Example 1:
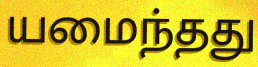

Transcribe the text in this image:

யமைந்தது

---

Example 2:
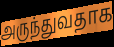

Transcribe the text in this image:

அருந்துவதாக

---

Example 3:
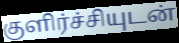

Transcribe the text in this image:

குளிர்ச்சியுடன்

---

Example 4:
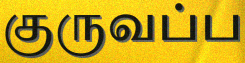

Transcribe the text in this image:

குருவப்ப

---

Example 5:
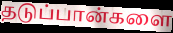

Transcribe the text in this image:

தடுப்பான்களை